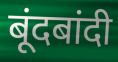
बूंदबांदी